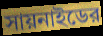
সায়নাইডের